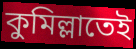
কুমিল্লাতেই